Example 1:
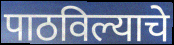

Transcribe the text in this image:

पाठविल्याचे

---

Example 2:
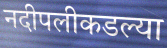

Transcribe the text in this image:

नदीपलीकडल्या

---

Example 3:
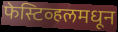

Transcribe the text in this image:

फेस्टिव्हलमधून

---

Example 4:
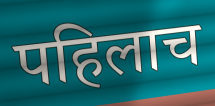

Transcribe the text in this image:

पहिलाच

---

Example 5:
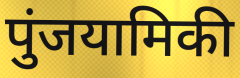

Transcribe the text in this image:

पुंजयामिकी